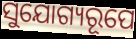
ସୁଯୋଗ୍ୟରୂପେ